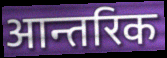
आन्तरिक